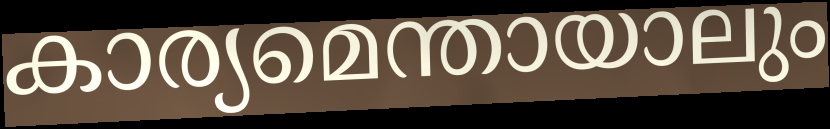
കാര്യമെന്തായാലും